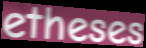
etheses